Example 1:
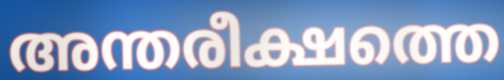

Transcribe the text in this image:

അന്തരീക്ഷത്തെ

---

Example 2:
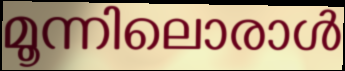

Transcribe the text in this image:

മൂന്നിലൊരാൾ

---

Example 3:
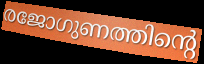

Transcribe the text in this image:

രജോഗുണത്തിന്റെ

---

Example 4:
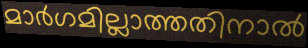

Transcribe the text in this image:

മാർഗമില്ലാത്തതിനാൽ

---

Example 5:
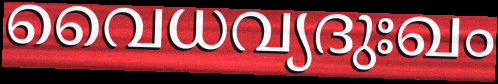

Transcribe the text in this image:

വൈധവ്യദുഃഖം